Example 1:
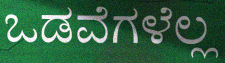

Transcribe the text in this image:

ಒಡವೆಗಳೆಲ್ಲ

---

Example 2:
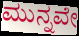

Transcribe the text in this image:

ಮುನ್ನವೇ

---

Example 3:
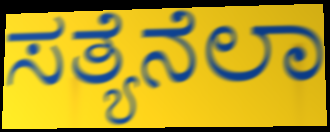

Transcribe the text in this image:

ಸತ್ಯೆನೆಲಾ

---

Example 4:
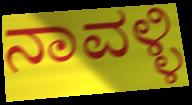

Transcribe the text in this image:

ನಾವಳ್ಳಿ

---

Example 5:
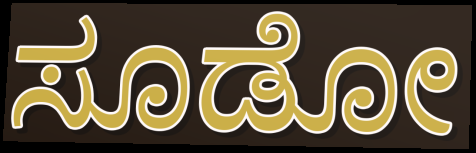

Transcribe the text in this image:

ಸೂಡೋ